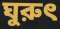
ঘুরুৎ